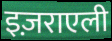
इज़राएली